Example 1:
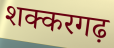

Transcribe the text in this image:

शक्करगढ़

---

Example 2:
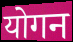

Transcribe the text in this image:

योगन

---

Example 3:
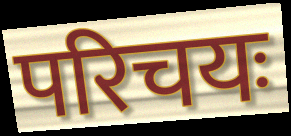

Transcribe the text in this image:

परिचयः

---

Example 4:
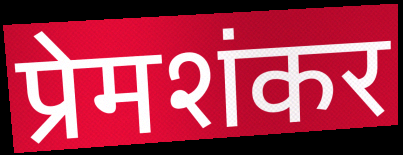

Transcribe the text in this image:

प्रेमशंकर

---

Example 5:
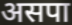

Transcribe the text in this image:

असपा